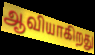
ஆவியாகிறது